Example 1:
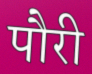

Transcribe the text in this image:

पौरी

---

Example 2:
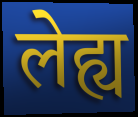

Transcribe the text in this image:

लेह्य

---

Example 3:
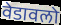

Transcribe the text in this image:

वेडावलो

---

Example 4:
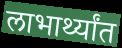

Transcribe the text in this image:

लाभार्थ्यांत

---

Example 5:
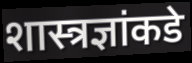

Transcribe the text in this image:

शास्त्रज्ञांकडे